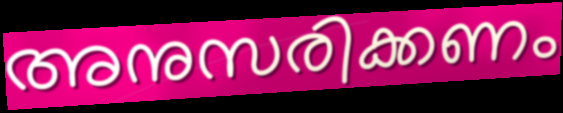
അനുസരിക്കണം